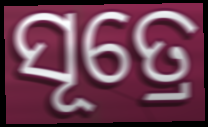
ସୂତ୍ରେ